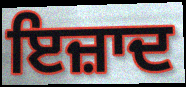
ਇਜ਼ਾਦ